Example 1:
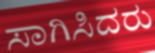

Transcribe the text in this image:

ಸಾಗಿಸಿದರು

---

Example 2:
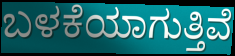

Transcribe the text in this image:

ಬಳಕೆಯಾಗುತ್ತಿವೆ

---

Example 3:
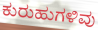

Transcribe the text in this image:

ಕುರುಹುಗಳಿವು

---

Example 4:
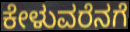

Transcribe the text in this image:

ಕೇಳುವರೆನಗೆ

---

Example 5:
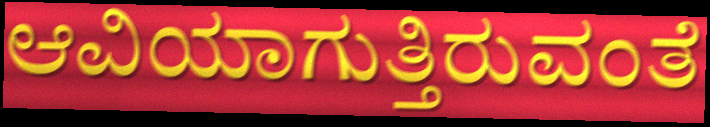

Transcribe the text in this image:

ಆವಿಯಾಗುತ್ತಿರುವಂತೆ